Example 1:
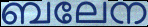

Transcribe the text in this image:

ബലേന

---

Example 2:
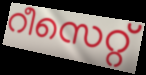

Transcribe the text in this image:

റീസെറ്റ്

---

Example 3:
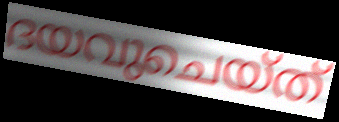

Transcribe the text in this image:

ദയവുചെയ്ത്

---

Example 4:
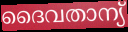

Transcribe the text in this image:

ദൈവതാന്യ്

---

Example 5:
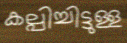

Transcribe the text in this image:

കല്പിച്ചിട്ടുള്ള